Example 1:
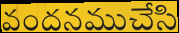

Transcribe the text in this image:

వందనముచేసి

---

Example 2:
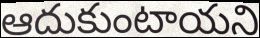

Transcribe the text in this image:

ఆదుకుంటాయని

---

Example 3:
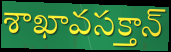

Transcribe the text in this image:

శాఖావసక్తాన్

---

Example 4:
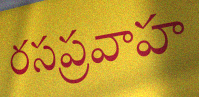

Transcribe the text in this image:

రసప్రవాహ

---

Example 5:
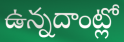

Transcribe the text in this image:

ఉన్నదాంట్లో